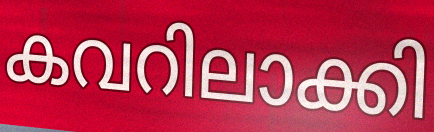
കവറിലാക്കി